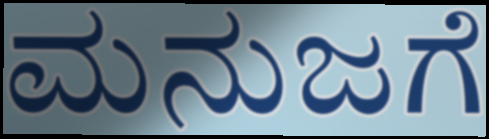
ಮನುಜಗೆ